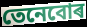
তেনেবোৰ